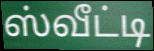
ஸ்வீட்டி